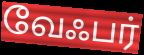
வேஃபர்